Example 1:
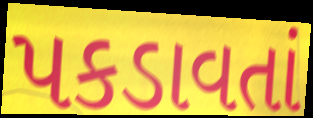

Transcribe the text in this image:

પકડાવતાં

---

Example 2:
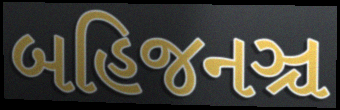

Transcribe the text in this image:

બહિજનઞ્ચ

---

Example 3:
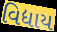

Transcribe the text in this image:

વિદ્યાય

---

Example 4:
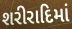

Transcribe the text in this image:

શરીરાદિમાં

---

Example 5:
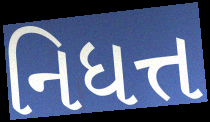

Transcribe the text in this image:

નિધત્ત